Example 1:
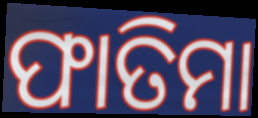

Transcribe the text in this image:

ଫାତିମା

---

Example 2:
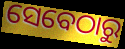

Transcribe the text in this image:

ସେବେଠାରୁ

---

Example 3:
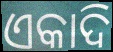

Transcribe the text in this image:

ଏକାଦି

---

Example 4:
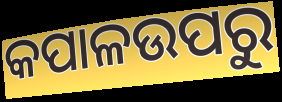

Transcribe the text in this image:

କପାଳଉପରୁ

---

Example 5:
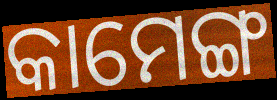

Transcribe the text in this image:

କାମେଙ୍ଗ